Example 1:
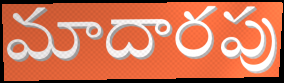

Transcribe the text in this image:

మాదారపు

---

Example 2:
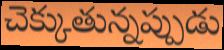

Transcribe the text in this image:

చెక్కుతున్నప్పుడు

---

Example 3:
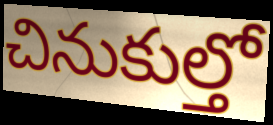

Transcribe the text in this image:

చినుకుల్తో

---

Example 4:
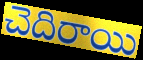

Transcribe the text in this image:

చెదిరాయి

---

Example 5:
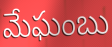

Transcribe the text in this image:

మేఘంబు